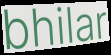
bhilar